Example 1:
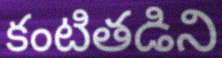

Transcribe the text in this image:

కంటితడిని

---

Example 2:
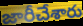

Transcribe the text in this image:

జారీచేశారు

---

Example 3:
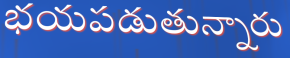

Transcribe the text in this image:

భయపడుతున్నారు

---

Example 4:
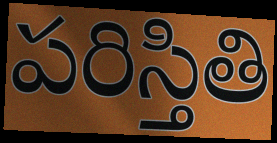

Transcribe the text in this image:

పరిస్తితి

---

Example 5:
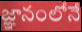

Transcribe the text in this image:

జ్ఞానంలోనే